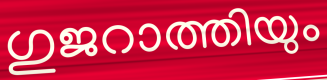
ഗുജറാത്തിയും